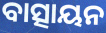
ବାତ୍ସାୟନ